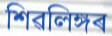
শিৱলিঙ্গৰ